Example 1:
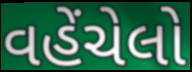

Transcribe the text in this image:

વહેંચેલો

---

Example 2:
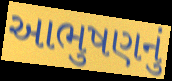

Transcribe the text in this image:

આભુષણનું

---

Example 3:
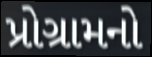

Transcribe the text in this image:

પ્રોગ્રામનો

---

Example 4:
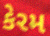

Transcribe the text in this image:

કેરમ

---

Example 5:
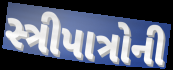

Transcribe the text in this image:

સ્ત્રીપાત્રોની